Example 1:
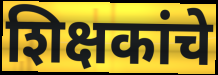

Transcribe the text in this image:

शिक्षकांचे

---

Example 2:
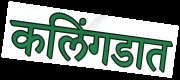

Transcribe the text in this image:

कलिंगडात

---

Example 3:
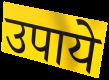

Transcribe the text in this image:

उपाये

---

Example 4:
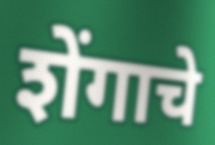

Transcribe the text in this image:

शेंगाचे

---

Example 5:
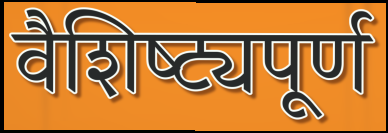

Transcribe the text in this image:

वैशिष्‍ट्यपूर्ण